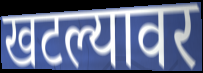
खटल्यावर